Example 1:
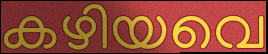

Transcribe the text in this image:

കഴിയവെ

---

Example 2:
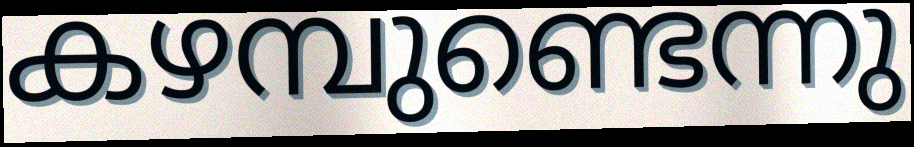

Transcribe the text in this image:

കഴമ്പുണ്ടെന്നു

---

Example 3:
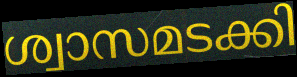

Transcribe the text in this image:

ശ്വാസമടക്കി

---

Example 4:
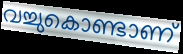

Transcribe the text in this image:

വച്ചുകൊണ്ടാണ്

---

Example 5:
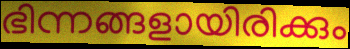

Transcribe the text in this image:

ഭിന്നങ്ങളായിരിക്കും